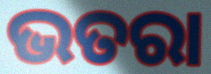
ଭତରା